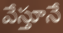
వేస్తూనే